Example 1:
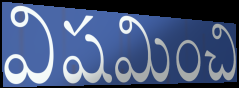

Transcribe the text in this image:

విషమించి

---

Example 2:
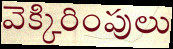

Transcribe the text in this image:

వెక్కిరింపులు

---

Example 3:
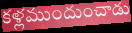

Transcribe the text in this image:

కళ్లముందుంచాడు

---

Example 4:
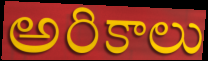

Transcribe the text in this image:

అరికాలు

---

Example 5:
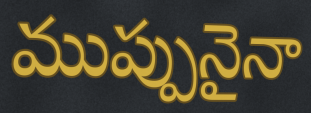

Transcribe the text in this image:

ముప్పునైనా